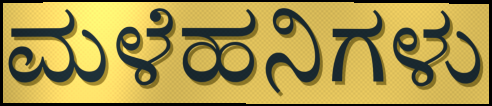
ಮಳೆಹನಿಗಳು